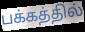
பக்கத்தில்